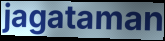
jagataman